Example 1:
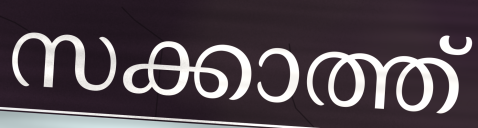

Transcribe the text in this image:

സക്കാത്ത്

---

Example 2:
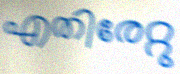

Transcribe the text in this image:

എതിരേറ്റു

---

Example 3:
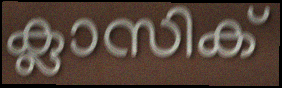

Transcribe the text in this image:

ക്ലാസിക്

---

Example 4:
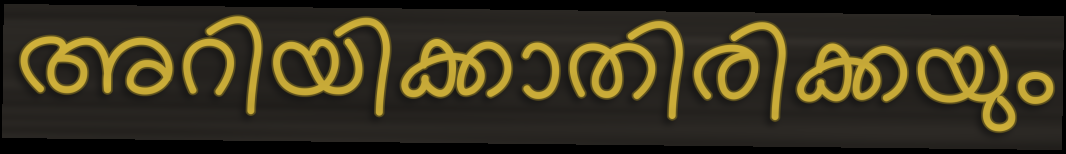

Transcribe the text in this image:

അറിയിക്കാതിരിക്കയും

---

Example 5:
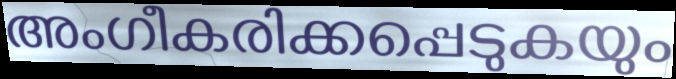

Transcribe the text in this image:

അംഗീകരിക്കപ്പെടുകയും